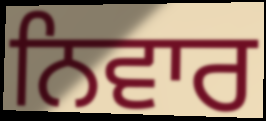
ਨਿਵਾਰ